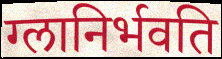
ग्लानिर्भवति